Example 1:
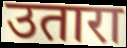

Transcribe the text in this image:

उतारा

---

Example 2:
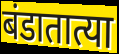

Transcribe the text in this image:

बंडातात्या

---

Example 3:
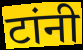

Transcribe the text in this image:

टांनी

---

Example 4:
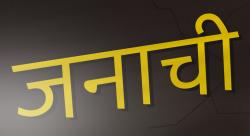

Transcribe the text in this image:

जनाची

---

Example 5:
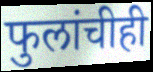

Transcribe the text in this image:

फुलांचीही